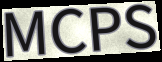
MCPS